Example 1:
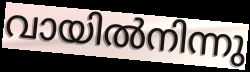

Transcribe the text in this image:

വായിൽനിന്നു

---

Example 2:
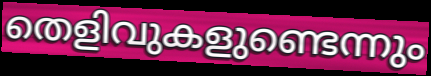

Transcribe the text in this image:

തെളിവുകളുണ്ടെന്നും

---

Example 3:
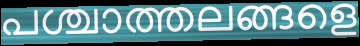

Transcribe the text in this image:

പശ്ചാത്തലങ്ങളെ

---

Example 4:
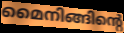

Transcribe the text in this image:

മൈനിങ്ങിന്റെ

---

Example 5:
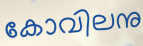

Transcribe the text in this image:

കോവിലനു